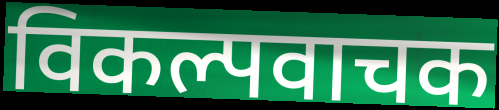
विकल्पवाचक